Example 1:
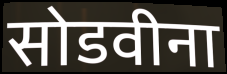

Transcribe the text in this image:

सोडवीना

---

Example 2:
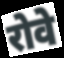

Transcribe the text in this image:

रोवे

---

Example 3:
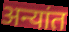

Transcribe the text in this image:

अन्यांत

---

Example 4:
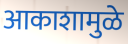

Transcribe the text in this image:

आकाशामुळे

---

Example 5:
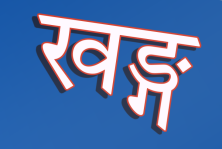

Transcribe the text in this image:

खङ्ग